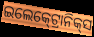
ଇଲେକ୍‍ଟ୍ରୋନିକ୍‍ସ